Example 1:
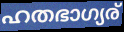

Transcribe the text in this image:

ഹതഭാഗ്യര്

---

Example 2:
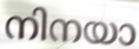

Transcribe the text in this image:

നിനയാ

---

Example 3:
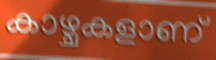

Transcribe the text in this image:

കാഴ്ചകളാണ്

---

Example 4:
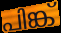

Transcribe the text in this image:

പിങ്ക്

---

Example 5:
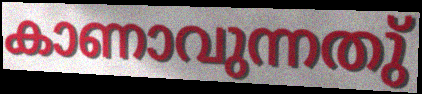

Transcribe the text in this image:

കാണാവുന്നതു്